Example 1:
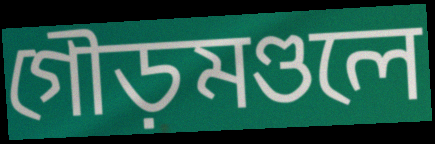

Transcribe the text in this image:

গৌড়মণ্ডলে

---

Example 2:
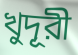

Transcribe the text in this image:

খুদূরী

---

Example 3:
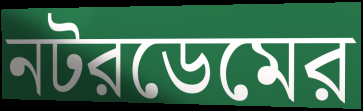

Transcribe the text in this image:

নটরডেমের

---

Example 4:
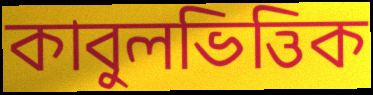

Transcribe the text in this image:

কাবুলভিত্তিক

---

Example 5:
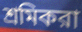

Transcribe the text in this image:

শ্রমিকরা